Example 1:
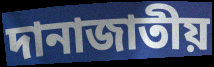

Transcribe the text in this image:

দানাজাতীয়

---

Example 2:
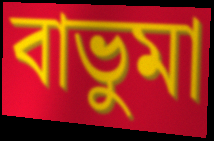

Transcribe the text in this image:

বাভুমা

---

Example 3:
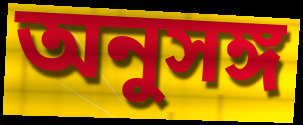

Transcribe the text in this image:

অনুসঙ্গ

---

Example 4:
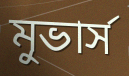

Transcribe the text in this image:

মুভার্স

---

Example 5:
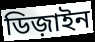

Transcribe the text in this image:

ডিজ়াইন